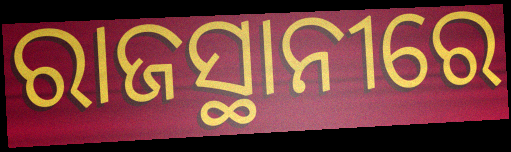
ରାଜସ୍ଥାନୀରେ